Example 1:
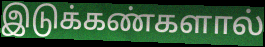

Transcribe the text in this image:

இடுக்கண்களால்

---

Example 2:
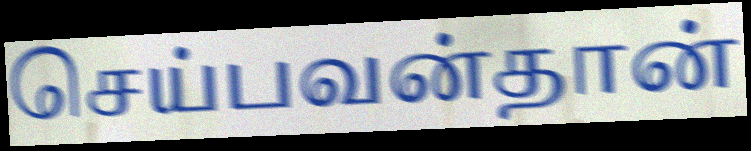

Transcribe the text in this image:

செய்பவன்தான்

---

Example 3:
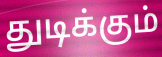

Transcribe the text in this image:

துடிக்கும்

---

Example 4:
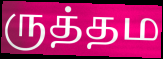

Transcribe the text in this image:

ருத்தம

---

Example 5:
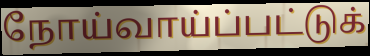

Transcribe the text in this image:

நோய்வாய்ப்பட்டுக்